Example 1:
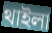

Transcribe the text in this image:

থাইলা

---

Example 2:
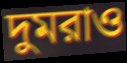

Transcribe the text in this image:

দুমরাও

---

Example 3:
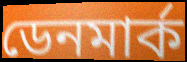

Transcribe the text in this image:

ডেনমার্ক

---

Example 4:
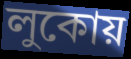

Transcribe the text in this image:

লুকোয়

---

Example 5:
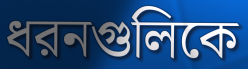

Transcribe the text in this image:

ধরনগুলিকে